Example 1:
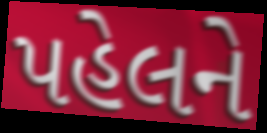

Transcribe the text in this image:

પહેલને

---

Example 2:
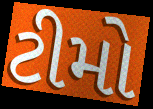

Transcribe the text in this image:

ટીમો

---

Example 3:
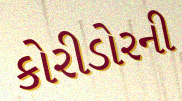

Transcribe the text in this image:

કોરીડોરની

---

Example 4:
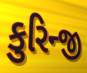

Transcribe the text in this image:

કુરિન્જી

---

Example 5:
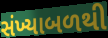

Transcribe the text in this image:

સંખ્યાબળથી